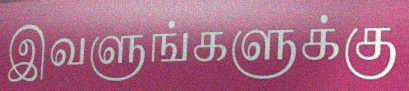
இவளுங்களுக்கு